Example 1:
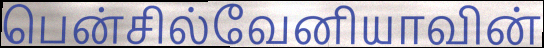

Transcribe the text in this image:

பென்சில்வேனியாவின்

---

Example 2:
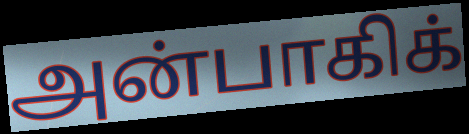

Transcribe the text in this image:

அன்பாகிக்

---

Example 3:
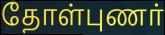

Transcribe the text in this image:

தோள்புணர்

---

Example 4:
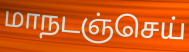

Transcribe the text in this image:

மாநடஞ்செய்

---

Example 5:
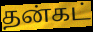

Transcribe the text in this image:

தன்கட்